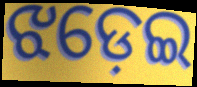
ଝଡ଼େଇ